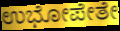
ಉಭೋಪೇತೇ